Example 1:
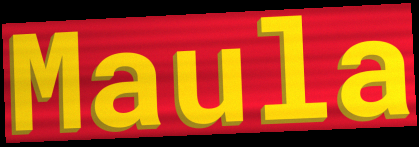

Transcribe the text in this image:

Maula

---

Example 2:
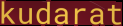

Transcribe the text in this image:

kudarat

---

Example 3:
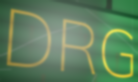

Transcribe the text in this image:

DRG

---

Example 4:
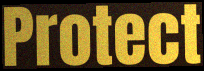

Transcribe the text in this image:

Protect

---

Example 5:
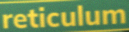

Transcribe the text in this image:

reticulum